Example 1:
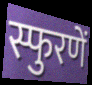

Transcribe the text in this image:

स्फुरणें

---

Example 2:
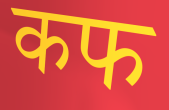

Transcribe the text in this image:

कफ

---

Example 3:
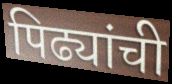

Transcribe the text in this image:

पिढ्यांची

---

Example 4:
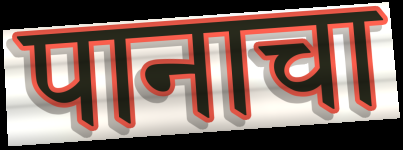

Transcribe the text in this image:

पानाचा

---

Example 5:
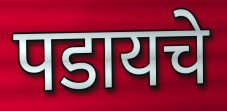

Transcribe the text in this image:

पडायचे